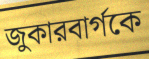
জুকারবার্গকে